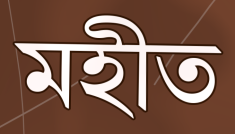
মহীত